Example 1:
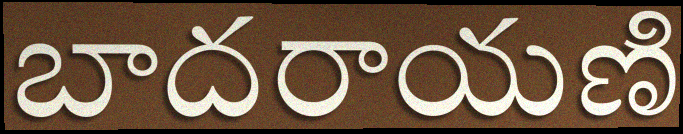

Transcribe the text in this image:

బాదరాయణి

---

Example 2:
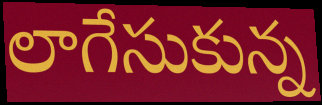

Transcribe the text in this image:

లాగేసుకున్న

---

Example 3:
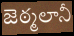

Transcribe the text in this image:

జెఠ్మలానీ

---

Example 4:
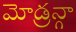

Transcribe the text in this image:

మోడ్రన్గా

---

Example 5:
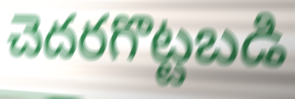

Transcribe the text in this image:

చెదరగొట్టబడి